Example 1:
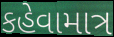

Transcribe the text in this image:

કહેવામાત્ર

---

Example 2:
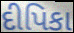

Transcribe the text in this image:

દીપિકા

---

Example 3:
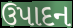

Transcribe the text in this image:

ઉપાદન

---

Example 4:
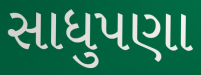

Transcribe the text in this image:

સાધુપણા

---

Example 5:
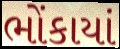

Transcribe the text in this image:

ભોંકાયાં